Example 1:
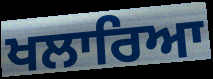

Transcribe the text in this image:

ਖਲਾਰਿਆ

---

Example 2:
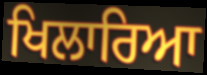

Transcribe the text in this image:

ਖਿਲਾਰਿਆ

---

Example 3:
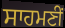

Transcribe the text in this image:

ਸਾਹਮਣੀਂ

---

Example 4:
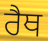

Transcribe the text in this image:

ਰੈਥ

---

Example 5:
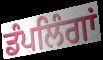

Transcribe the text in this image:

ਡੰਪਲਿੰਗਾਂ